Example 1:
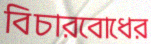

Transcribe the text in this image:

বিচারবোধের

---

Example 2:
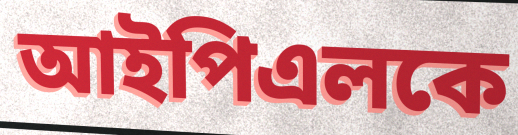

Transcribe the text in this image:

আইপিএলকে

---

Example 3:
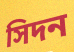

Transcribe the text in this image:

সিদন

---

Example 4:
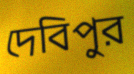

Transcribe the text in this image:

দেবিপুর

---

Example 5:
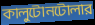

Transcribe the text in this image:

কালুটোনটোলার